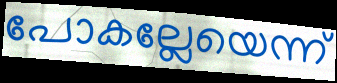
പോകല്ലേയെന്ന്